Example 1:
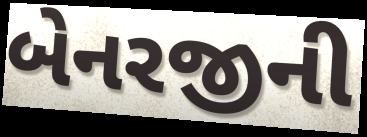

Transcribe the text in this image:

બેનરજીની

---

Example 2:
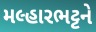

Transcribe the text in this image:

મલ્હારભટ્ટને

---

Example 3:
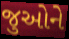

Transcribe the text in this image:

જુઓને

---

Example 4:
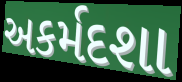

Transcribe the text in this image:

અકર્મદશા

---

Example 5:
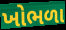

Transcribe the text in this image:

ખોભળા